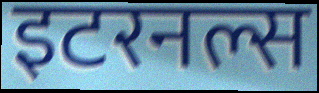
इटरनल्स